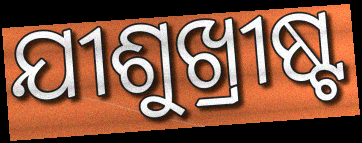
ଯୀଶୁଖ୍ରୀଷ୍ଟ